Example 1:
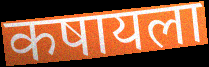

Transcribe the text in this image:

कषायला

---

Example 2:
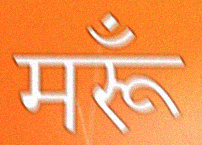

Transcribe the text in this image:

मरूँ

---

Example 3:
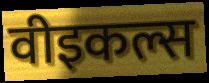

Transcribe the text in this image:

वीइकल्‍स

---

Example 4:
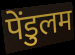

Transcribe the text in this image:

पेंडुलम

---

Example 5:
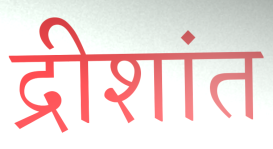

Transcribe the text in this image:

द्रीशांत